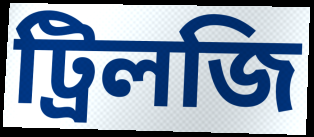
ট্রিলজি